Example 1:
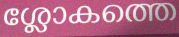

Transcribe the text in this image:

ശ്ലോകത്തെ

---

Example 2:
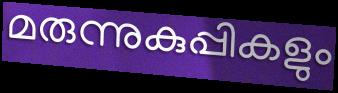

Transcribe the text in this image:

മരുന്നുകുപ്പികളും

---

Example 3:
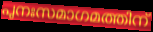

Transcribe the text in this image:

പുനഃസമാഗമത്തിന്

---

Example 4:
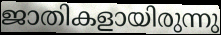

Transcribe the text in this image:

ജാതികളായിരുന്നു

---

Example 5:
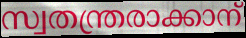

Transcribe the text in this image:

സ്വതന്ത്രരാക്കാന്